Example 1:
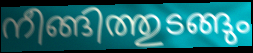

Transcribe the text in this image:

നീങ്ങിത്തുടങ്ങും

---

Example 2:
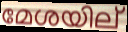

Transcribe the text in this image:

മേശയില്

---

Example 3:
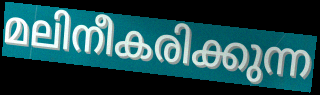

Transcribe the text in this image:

മലിനീകരിക്കുന്ന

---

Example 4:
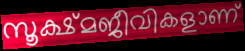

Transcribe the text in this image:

സൂക്ഷ്മജീവികളാണ്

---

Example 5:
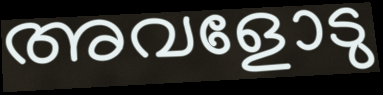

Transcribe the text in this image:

അവളോടു